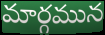
మార్గమున